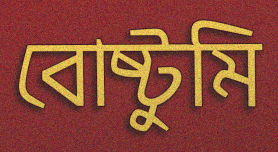
বোষ্টুমি